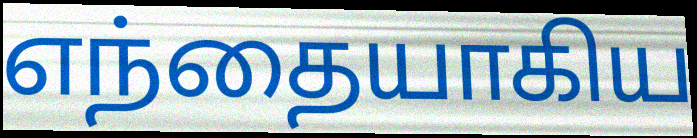
எந்தையாகிய